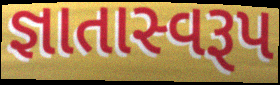
જ્ઞાતાસ્વરૂપ